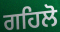
ਗਹਿਲੋ